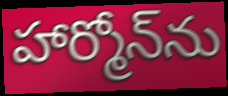
హార్మోన్‌ను